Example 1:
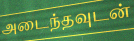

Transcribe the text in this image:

அடைந்தவுடன்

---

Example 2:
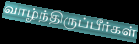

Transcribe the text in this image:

வாழ்ந்திருப்பீர்கள்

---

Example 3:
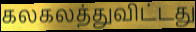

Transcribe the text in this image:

கலகலத்துவிட்டது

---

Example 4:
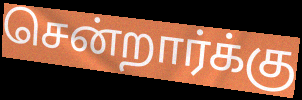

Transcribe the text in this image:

சென்றார்க்கு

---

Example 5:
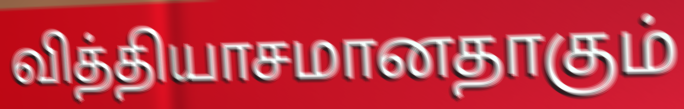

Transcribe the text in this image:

வித்தியாசமானதாகும்